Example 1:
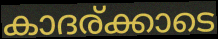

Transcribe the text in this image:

കാദര്ക്കാടെ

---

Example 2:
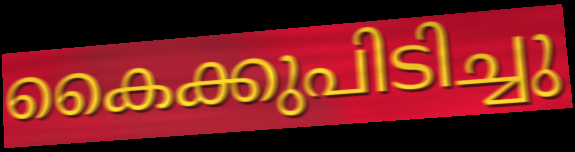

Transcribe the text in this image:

കൈക്കുപിടിച്ചു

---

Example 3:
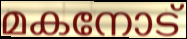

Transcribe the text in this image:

മകനോട്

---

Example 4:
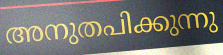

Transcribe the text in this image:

അനുതപിക്കുന്നു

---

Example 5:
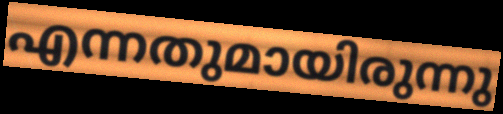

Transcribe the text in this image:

എന്നതുമായിരുന്നു